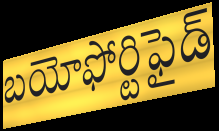
బయోఫోర్టిఫైడ్